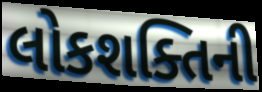
લોકશક્તિની